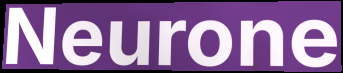
Neurone